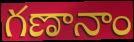
గణానాం